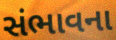
સંભાવના